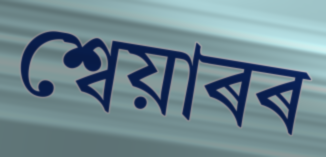
শ্বেয়াৰৰ